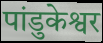
पांडुकेश्वर